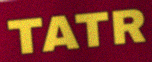
TATR